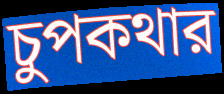
চুপকথার